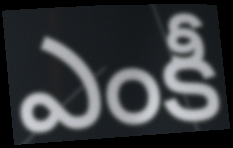
ఎంకీ